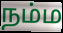
நம்ம